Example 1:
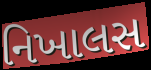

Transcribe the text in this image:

નિખાલસ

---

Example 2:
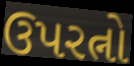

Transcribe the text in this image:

ઉપરત્નો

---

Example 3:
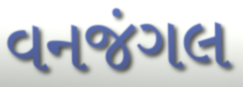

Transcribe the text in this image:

વનજંગલ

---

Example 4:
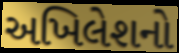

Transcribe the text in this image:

અખિલેશનો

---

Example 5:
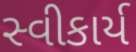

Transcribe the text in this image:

સ્વીકાર્ય